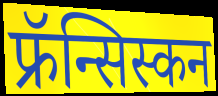
फ्रॅन्सिस्कन